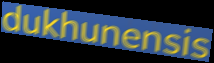
dukhunensis